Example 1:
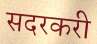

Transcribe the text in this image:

सदरकरी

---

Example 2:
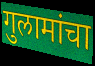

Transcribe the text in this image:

गुलामांचा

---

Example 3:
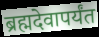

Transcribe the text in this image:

ब्रह्मदेवापर्यंत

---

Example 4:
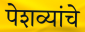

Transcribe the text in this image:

पेशव्यांचे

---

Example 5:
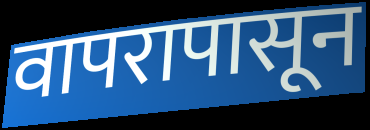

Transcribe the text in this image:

वापरापासून